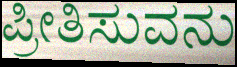
ಪ್ರೀತಿಸುವನು